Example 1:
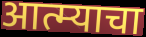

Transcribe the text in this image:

आत्म्याचा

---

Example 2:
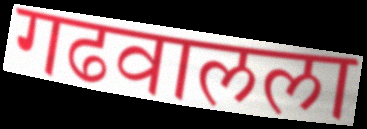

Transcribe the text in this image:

गढवालला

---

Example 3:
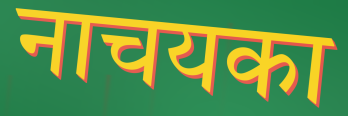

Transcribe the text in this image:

नाचयका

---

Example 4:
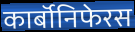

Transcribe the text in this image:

कार्बॉनिफेरस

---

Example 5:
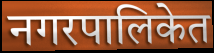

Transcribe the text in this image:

नगरपालिकेत